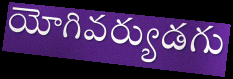
యోగివర్యుడగు